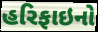
હરિફાઇનો